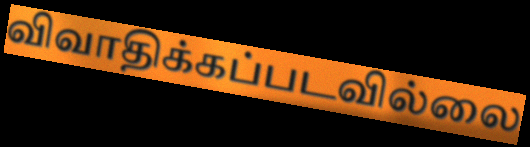
விவாதிக்கப்படவில்லை